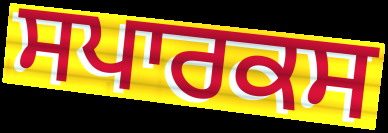
ਸਪਾਰਕਸ